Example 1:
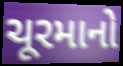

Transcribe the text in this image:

ચૂરમાનો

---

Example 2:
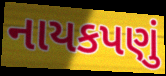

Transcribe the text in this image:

નાયકપણું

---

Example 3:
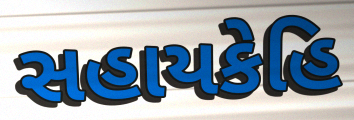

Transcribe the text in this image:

સહાયકેહિ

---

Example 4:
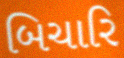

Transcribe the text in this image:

બિચારિ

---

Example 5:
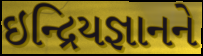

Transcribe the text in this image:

ઇન્દ્રિયજ્ઞાનને